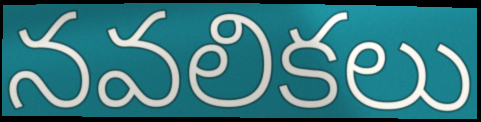
నవలికలు